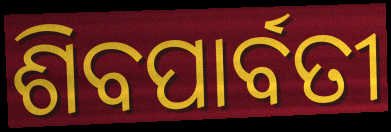
ଶିବପାର୍ବତୀ